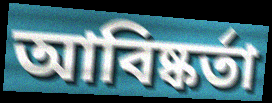
আবিষ্কর্তা